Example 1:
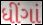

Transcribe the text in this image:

ધીંગાં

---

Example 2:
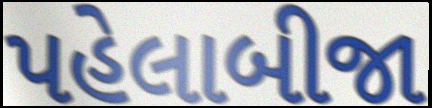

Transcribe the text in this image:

પહેલાબીજા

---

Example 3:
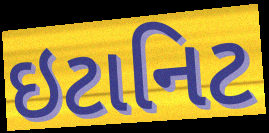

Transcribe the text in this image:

ઇટાનિટ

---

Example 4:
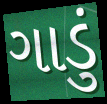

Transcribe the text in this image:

ગાડું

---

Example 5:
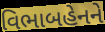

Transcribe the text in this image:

વિભાબહેનને